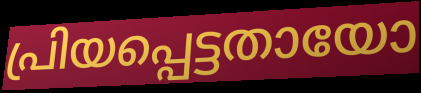
പ്രിയപ്പെട്ടതായോ